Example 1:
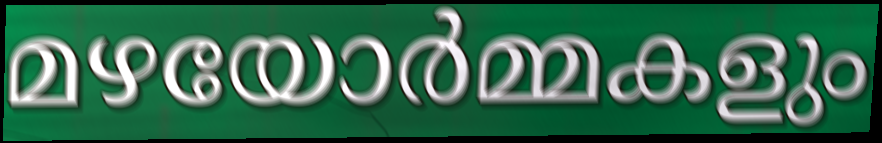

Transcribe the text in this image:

മഴയോർമ്മകളും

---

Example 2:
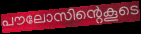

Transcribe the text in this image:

പൗലോസിന്റെകൂടെ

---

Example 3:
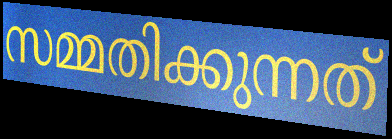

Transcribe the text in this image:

സമ്മതിക്കുന്നത്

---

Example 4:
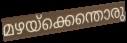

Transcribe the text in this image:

മഴയ്ക്കെന്തൊരു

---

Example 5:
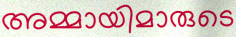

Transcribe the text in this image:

അമ്മായിമാരുടെ